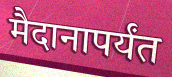
मैदानापर्यंत